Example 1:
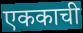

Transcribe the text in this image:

एककाची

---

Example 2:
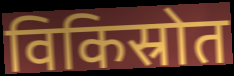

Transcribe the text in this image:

विकिस्रोत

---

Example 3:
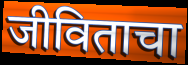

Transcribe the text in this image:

जीविताचा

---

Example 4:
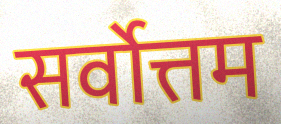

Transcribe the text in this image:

सर्वोत्तम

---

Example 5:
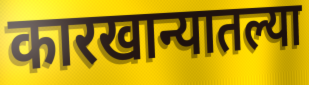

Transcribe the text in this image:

कारखान्यातल्या